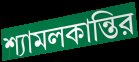
শ্যামলকান্তির